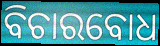
ବିଚାରବୋଧ